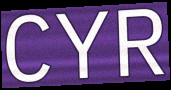
CYR